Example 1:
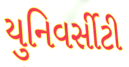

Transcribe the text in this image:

યુનિવર્સીટી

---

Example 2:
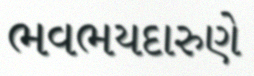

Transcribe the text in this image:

ભવભયદારુણે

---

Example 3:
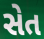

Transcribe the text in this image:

સેત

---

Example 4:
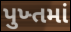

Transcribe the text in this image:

પુખ્તમાં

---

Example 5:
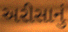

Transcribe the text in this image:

અરીસાનું